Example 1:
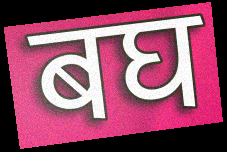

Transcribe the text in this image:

बघ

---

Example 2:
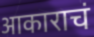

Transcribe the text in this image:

आकाराचं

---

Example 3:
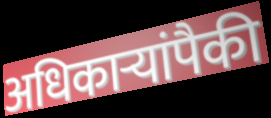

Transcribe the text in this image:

अधिकार्‍यांपैकी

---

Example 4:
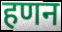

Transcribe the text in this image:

हणन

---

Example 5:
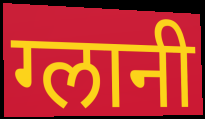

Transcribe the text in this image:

ग्लानी